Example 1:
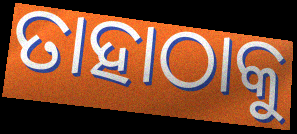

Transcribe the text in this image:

ତାହାଠାକୁ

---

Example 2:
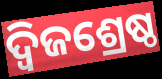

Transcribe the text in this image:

ଦ୍ୱିଜଶ୍ରେଷ୍ଠ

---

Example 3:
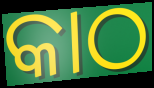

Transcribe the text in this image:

କାଠ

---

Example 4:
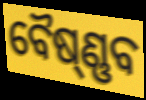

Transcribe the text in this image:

ବୈଷ୍ଣ୍ଣବ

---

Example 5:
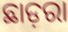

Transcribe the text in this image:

ଛାଡ଼ରା